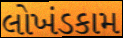
લોખંડકામ